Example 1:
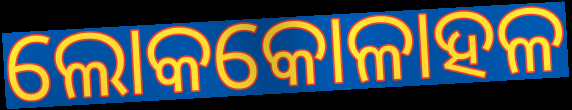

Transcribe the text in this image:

ଲୋକକୋଳାହଳ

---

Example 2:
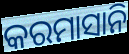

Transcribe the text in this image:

କରମାସାନି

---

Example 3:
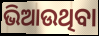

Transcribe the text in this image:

ଭିଆଉଥିବା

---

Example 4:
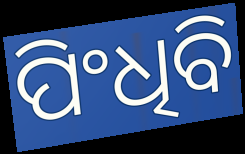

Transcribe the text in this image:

ପିଂଧିବି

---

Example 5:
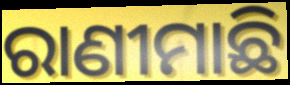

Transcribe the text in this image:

ରାଣୀମାଛି